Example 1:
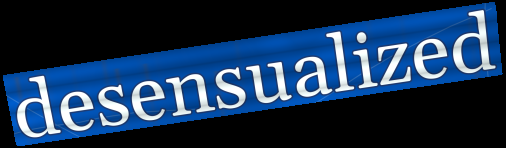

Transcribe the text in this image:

desensualized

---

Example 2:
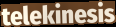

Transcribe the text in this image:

telekinesis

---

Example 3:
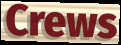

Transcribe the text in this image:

Crews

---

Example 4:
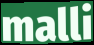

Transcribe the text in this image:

malli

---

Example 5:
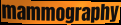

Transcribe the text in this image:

mammography